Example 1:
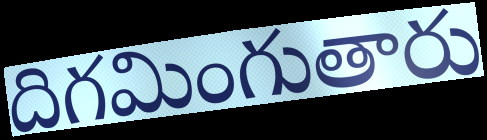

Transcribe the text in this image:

దిగమింగుతారు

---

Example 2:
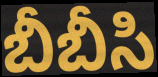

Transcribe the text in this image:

బీబీసి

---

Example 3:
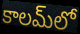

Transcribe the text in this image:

కాలమ్‍లో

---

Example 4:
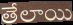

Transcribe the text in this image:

తేలాయి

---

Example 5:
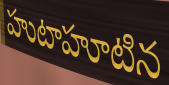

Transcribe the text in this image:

హుటాహూటిన